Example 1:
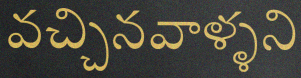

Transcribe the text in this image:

వచ్చినవాళ్ళని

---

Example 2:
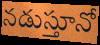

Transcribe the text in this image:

నడుస్తూనో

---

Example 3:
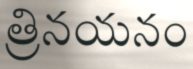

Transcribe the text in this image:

త్రినయనం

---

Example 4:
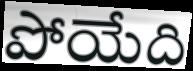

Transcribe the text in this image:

పోయేది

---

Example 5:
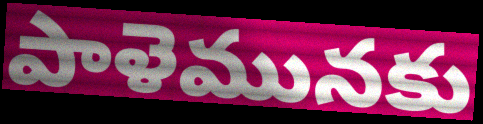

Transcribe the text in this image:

పాళెమునకు